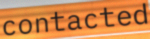
contacted